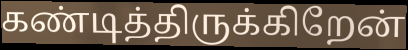
கண்டித்திருக்கிறேன்